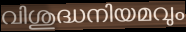
വിശുദ്ധനിയമവും